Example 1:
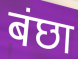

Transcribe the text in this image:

बंछा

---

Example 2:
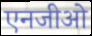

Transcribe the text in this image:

एनजीओ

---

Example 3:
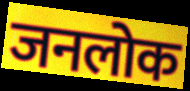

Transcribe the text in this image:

जनलोक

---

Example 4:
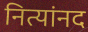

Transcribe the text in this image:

नित्यांनद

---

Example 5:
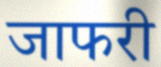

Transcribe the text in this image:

जाफरी